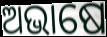
ଅଭାଷେ